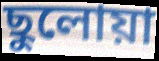
ছুলোয়া